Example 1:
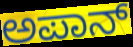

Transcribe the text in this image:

ಅಪಾನ್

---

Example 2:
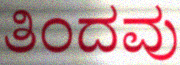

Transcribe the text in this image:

ತಿಂದವು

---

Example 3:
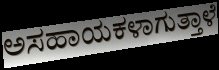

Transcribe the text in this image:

ಅಸಹಾಯಕಳಾಗುತ್ತಾಳೆ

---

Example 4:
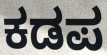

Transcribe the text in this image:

ಕಡಪ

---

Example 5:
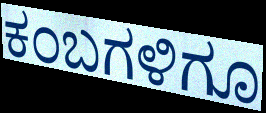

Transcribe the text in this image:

ಕಂಬಗಳಿಗೂ